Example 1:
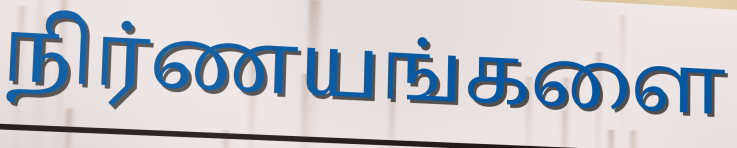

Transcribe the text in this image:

நிர்ணயங்களை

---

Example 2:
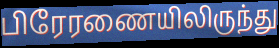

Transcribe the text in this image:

பிரேரணையிலிருந்து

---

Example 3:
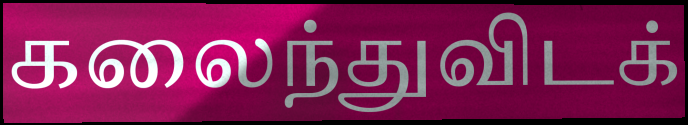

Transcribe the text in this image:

கலைந்துவிடக்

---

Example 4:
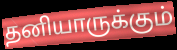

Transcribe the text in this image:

தனியாருக்கும்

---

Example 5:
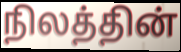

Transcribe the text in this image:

நிலத்தின்